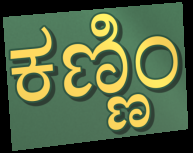
ಕಣ್ಣಿಂ